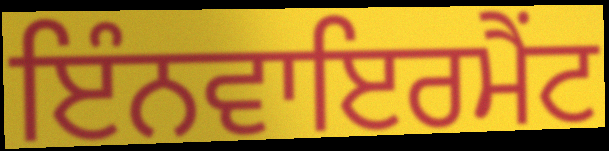
ਇੰਨਵਾਇਰਮੈਂਟ